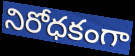
నిరోధకంగా